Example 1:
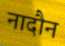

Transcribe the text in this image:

नादौन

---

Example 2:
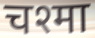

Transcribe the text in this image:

चश्मा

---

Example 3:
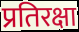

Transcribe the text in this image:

प्रतिरक्षा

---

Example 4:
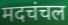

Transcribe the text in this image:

मदचंचल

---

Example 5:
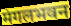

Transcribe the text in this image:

मंगलभवन